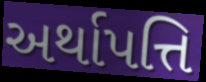
અર્થાપત્તિ